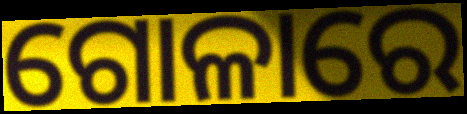
ଗୋଳାରେ